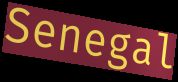
Senegal